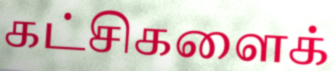
கட்சிகளைக்